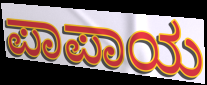
ಪಾಪಾಯ